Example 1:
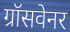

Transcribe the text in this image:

ग्रॉसवेनर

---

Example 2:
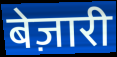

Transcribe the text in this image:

बेज़ारी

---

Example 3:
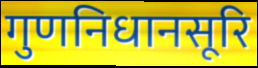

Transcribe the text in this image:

गुणनिधानसूरि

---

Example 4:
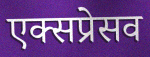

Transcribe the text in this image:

एक्सप्रेसव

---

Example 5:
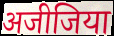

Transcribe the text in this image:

अजीजिया